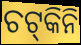
ଚଟ୍‍କିନି